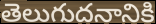
తెలుగుదనానికి